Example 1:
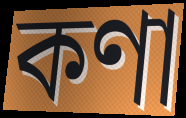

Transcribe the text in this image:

কণা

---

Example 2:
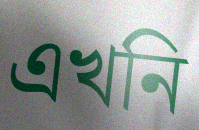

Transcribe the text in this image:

এখনি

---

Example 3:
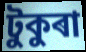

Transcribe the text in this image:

টুকুৰা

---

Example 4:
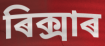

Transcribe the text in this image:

ৰিক্সাৰ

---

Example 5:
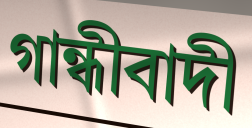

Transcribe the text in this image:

গান্ধীবাদী